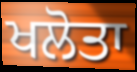
ਖਲੋਤਾ